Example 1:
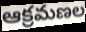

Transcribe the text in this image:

ఆక్రమణల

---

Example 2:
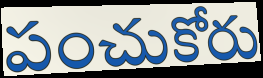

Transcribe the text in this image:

పంచుకోరు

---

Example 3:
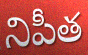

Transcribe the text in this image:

నిపీత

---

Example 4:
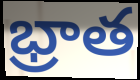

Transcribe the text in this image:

భ్రాత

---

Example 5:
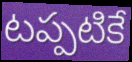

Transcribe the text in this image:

టప్పటికే